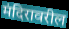
मंदिरावरील